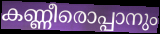
കണ്ണീരൊപ്പാനും